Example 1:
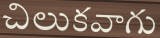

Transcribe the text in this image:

చిలుకవాగు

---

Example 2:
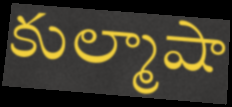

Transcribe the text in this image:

కుల్మాషా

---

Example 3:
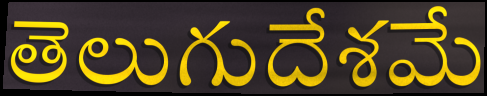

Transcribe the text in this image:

తెలుగుదేశమే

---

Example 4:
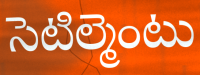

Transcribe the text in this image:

సెటిల్మెంటు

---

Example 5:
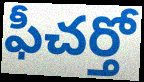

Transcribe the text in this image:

ఫీచర్తో